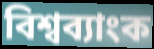
বিশ্বব্যাংক